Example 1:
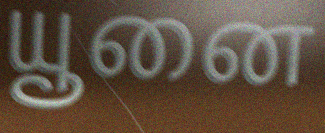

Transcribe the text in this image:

யூனை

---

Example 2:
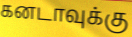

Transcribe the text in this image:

கனடாவுக்கு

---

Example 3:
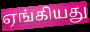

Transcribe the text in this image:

ஏங்கியது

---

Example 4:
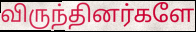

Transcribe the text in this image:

விருந்தினர்களே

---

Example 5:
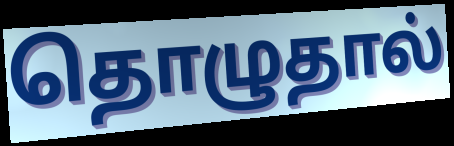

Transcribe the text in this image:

தொழுதால்